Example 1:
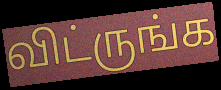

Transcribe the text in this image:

விட்ருங்க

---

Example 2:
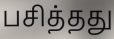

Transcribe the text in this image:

பசித்தது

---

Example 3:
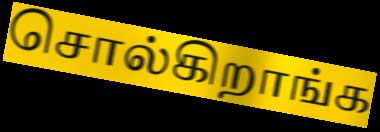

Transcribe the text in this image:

சொல்கிறாங்க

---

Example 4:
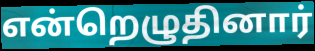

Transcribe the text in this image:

என்றெழுதினார்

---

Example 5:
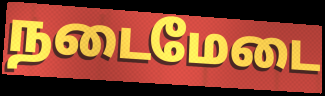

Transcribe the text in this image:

நடைமேடை